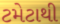
ટમેટાથી